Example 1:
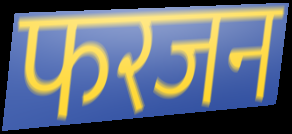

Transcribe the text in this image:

फरजन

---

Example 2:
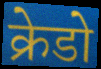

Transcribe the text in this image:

क्रेडो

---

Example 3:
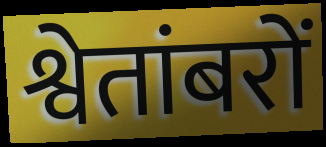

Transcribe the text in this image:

श्वेतांबरों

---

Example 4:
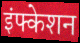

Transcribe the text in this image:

इंफ्केशन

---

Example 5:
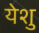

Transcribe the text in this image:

येशु